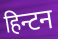
हिन्टन